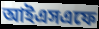
আইএসএফে